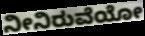
ನೀನಿರುವೆಯೋ